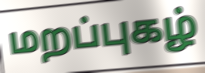
மறப்புகழ்